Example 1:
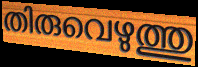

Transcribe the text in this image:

തിരുവെഴുത്തു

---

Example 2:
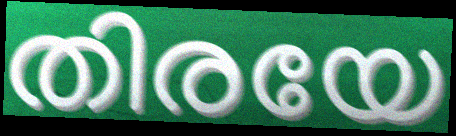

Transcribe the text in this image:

തിരയേ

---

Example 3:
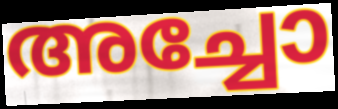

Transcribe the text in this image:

അച്ചോ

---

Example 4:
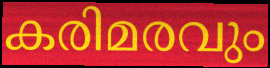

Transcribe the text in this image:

കരിമരവും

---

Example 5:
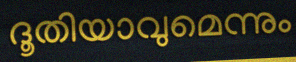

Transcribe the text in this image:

ദൂതിയാവുമെന്നും